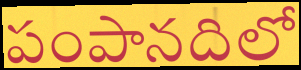
పంపానదిలో